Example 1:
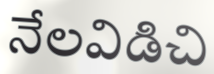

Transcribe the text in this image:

నేలవిడిచి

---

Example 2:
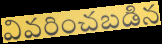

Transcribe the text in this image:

వివరించబడిన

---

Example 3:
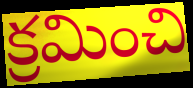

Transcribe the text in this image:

క్రమించి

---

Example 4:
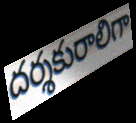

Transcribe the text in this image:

దర్శకురాలిగా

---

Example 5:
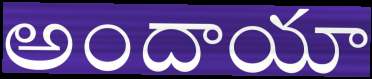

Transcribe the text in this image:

అందాయా